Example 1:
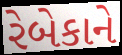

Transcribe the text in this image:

રેબેકાને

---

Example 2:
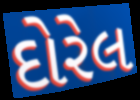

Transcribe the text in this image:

દોરેલ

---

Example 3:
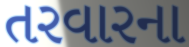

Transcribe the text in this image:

તરવારના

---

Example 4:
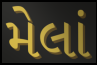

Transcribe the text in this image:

મેલાં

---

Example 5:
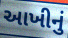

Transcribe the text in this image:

આખીનું